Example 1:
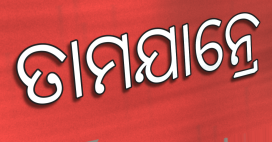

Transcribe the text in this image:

ତାମଯାନ୍ରେ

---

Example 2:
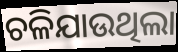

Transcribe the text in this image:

ଚଳିଯାଉଥିଲା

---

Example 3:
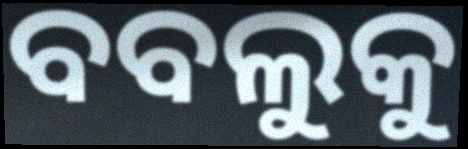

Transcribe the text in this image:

ବବଲୁକୁ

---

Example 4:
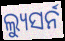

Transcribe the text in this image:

ଲ୍ୟୁସର୍ନ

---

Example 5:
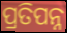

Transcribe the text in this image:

ପ୍ରତିପନ୍ନ